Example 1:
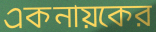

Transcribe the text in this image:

একনায়কের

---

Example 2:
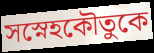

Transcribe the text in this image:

সস্নেহকৌতুকে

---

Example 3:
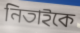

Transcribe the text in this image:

নিতাইকে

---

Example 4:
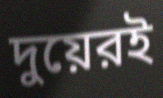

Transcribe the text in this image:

দুয়েরই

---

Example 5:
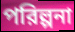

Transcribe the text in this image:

পরিল্পনা